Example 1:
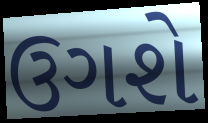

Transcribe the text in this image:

ઉગશે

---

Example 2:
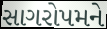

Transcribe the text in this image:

સાગરોપમને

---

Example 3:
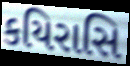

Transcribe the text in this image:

કયિરાસિ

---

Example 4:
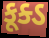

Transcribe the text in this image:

કૂક્ડ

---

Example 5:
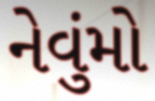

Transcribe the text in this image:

નેવુંમો